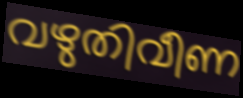
വഴുതിവീണ